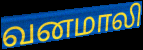
வனமாலி